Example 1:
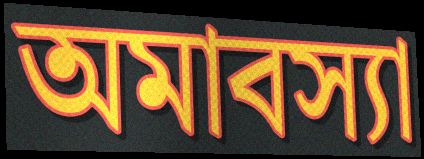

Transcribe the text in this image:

অমাবস্যা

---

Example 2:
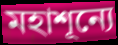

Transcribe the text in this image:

মহাশূন্যে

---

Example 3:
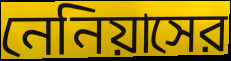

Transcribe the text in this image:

নেনিয়াসের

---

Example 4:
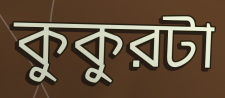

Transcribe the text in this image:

কুকুরটা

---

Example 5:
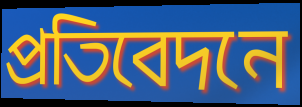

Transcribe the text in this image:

প্রতিবেদনে